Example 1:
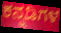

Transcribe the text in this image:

ಕನ್ನಡಿಗಳ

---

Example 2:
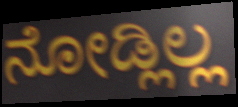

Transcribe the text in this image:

ನೋಡ್ಲಿಲ್ಲ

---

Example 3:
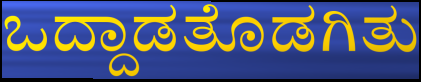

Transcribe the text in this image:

ಒದ್ದಾಡತೊಡಗಿತು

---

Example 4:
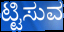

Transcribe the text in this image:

ಟ್ಟಿಸುವ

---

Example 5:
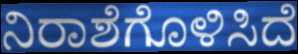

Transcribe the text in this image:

ನಿರಾಶೆಗೊಳಿಸಿದೆ